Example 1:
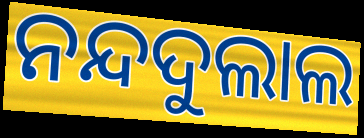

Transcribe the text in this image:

ନନ୍ଦଦୁଲାଲ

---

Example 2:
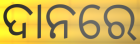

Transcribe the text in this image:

ଦାନରେ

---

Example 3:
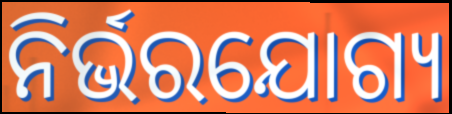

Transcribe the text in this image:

ନିର୍ଭରଯୋଗ୍ୟ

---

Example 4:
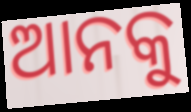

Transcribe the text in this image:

ଆନକୁ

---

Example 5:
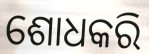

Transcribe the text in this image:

ଶୋଧକରି